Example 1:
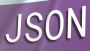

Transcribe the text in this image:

JSON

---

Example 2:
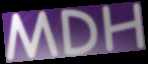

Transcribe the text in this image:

MDH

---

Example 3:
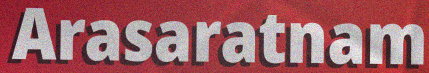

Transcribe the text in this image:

Arasaratnam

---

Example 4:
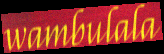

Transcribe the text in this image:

wambulala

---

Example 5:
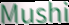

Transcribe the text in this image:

Mushi